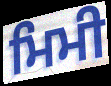
ਮਿਮੀ